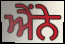
ਐਂਨੇ